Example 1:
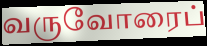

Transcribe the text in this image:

வருவோரைப்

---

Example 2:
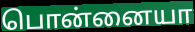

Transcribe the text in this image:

பொன்னையா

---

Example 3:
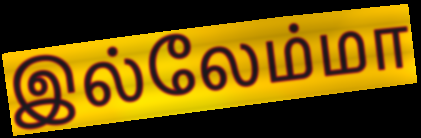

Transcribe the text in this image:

இல்லேம்மா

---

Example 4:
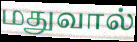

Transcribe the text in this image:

மதுவால்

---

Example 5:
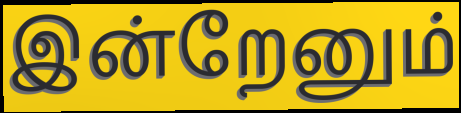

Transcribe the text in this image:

இன்றேனும்